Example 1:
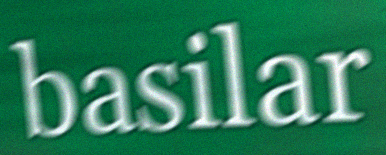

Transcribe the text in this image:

basilar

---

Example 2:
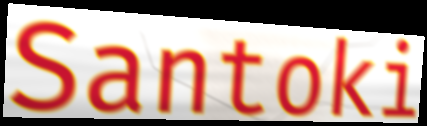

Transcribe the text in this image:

Santoki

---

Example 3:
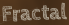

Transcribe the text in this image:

Fractal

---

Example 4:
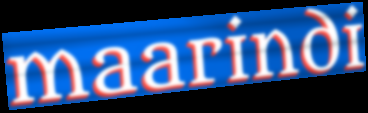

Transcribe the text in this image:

maarindi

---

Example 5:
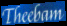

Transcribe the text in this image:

Theebam